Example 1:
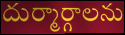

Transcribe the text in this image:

దుర్మార్గాలను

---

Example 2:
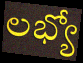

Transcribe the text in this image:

లభ్యో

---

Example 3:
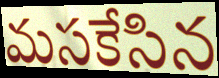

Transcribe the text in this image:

మసకేసిన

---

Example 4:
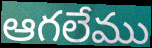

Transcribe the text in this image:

ఆగలేము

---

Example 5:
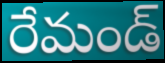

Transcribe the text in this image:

రేమండ్